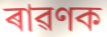
ৰাৱণক